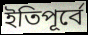
ইতিপূৰ্বে